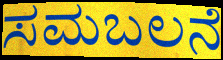
ಸಮಬಲನೆ